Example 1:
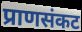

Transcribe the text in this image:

प्राणसंकट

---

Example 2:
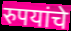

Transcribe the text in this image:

रुपयांचे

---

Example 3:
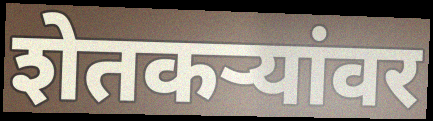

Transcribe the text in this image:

शेतकर्‍यांवर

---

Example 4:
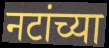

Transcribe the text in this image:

नटांच्या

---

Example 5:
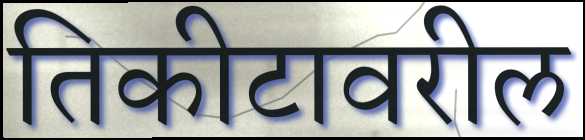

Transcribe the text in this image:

तिकीटावरील